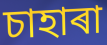
চাহাৰা